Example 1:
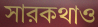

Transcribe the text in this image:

সারকথাও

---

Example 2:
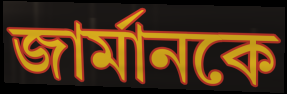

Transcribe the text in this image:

জার্মানকে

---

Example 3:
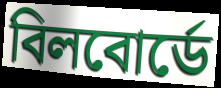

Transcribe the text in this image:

বিলবোর্ডে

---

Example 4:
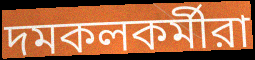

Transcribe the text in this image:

দমকলকর্মীরা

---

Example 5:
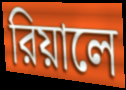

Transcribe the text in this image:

রিয়ালে